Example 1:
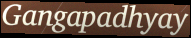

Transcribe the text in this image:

Gangapadhyay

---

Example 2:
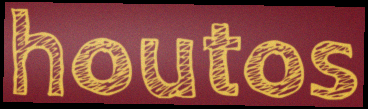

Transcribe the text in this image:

houtos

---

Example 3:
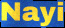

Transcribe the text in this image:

Nayi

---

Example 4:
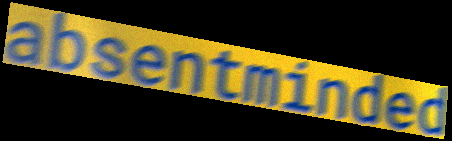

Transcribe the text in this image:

absentminded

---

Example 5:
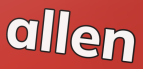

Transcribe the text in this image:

allen